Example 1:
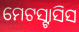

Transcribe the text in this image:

ମେଟସ୍ଟାସିସ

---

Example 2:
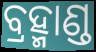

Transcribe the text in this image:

ବ୍ରହ୍ମାଣ୍ଡ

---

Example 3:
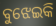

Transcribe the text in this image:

ବୁଝେଇକି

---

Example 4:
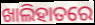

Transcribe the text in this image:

ଖାଲିହାତରେ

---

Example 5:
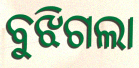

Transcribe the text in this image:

ବୁଝିଗଲା